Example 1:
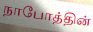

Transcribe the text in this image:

நாபோத்தின்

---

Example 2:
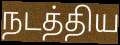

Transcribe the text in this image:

நடத்திய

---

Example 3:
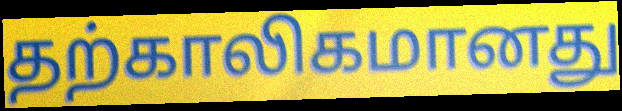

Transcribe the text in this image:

தற்காலிகமானது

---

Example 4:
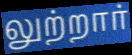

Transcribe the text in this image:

லுற்றார்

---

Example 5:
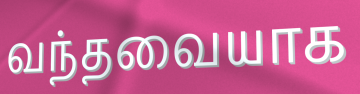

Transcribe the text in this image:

வந்தவையாக